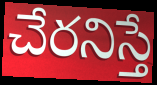
చేరనిస్తే